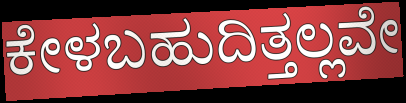
ಕೇಳಬಹುದಿತ್ತಲ್ಲವೇ